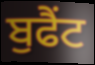
ਬੁਫੈਂਟ